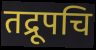
तद्रूपचि